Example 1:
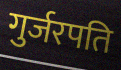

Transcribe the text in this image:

गुर्जरपति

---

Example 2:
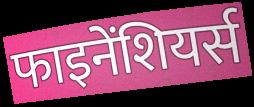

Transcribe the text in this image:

फाइनेंशियर्स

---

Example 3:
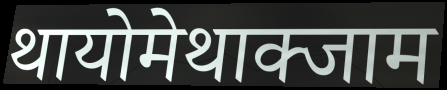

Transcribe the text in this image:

थायोमेथाक्जाम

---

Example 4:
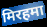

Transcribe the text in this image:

मिरहमा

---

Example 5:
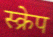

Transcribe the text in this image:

स्क्रेप